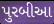
પુરબીઆ